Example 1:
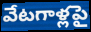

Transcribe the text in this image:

వేటగాళ్లపై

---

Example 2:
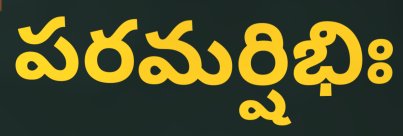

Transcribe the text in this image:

పరమర్షిభిః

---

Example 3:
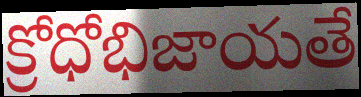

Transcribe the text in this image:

క్రోధోభిజాయతే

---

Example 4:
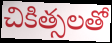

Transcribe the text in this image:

చికిత్సలతో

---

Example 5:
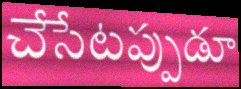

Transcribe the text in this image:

చేసేటప్పుడూ